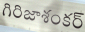
గిరిజాశంకర్